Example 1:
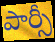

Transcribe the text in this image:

పార్సీ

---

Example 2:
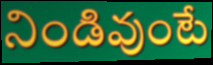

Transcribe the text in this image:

నిండివుంటే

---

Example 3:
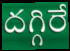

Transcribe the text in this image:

దగ్గిరే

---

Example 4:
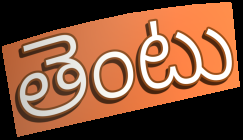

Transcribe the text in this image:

తెంటు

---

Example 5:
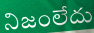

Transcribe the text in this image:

నిజంలేదు